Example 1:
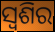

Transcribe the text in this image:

ସ୍ଵଶିର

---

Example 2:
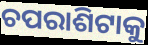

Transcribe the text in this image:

ଚପରାଶିଟାକୁ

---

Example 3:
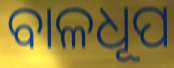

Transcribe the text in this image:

ବାଳଧୂପ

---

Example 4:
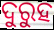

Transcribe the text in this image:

ଦୁରୁହ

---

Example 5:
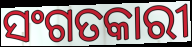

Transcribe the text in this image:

ସଂଗତକାରୀ